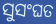
ସୁସଂଘତ